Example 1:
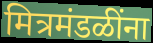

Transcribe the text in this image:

मित्रमंडळींना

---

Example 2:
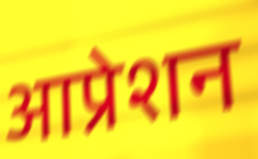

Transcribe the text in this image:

आप्रेशन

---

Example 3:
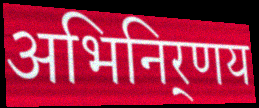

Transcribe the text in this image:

अभिनिर्णय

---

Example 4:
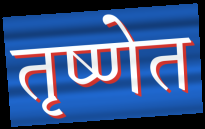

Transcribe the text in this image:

तृष्णेत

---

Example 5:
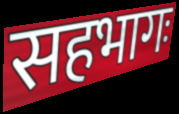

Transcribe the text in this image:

सहभागः